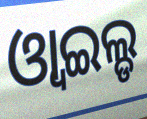
ଓ୍ବାଇଲ୍ଡ